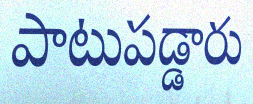
పాటుపడ్డారు